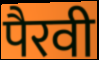
पैरवी